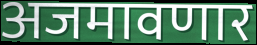
अजमावणार